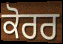
ਕੋਰਰ